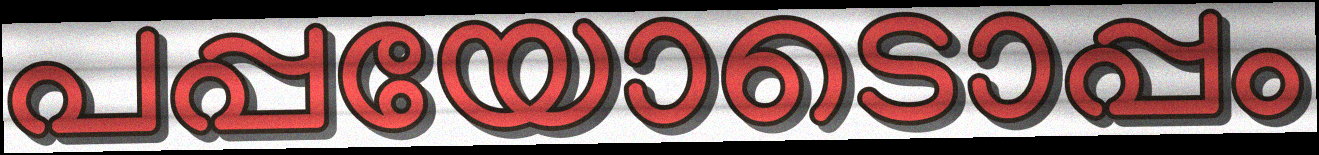
പപ്പയോടൊപ്പം